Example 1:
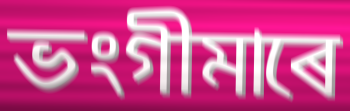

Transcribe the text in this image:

ভংগীমাৰে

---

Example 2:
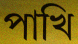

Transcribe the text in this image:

পাখি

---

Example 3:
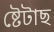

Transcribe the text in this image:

ষ্টেটাছ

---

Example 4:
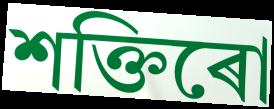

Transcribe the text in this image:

শক্তিৰো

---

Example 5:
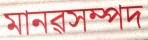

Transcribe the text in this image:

মানৱসম্পদ